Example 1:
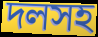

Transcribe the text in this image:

দলসহ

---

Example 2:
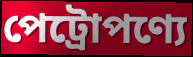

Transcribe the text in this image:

পেট্রোপণ্যে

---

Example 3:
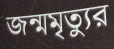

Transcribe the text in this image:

জন্মমৃত্যুর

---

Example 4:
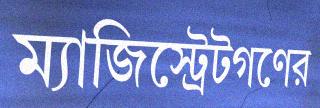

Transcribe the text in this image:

ম্যাজিস্ট্রেটগণের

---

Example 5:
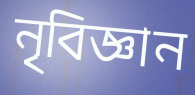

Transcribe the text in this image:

নৃবিজ্ঞান